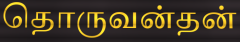
தொருவன்தன்